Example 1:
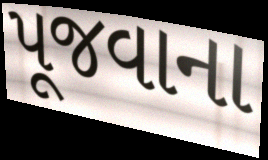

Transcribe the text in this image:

પૂજવાના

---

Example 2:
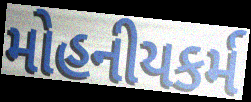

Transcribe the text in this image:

મોહનીયકર્મ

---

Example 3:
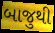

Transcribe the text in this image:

બાજુથી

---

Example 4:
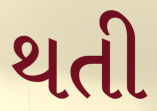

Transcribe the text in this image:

થતી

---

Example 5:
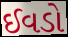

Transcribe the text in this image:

ઈવડો